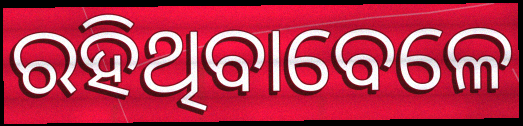
ରହିଥିବାବେଳେ